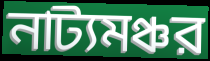
নাট্যমঞ্চর